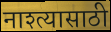
नाश्त्यासाठी